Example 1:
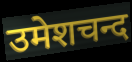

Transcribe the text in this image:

उमेशचन्द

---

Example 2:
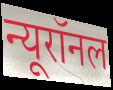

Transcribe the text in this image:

न्यूरॉनल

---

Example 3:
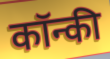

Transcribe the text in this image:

कॉन्की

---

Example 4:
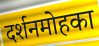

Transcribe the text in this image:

दर्शनमोहका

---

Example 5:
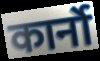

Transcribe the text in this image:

कार्नो